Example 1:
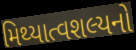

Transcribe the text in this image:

મિથ્યાત્વશલ્યનો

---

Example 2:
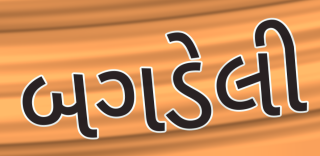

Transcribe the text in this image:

બગડેલી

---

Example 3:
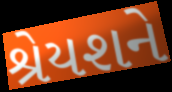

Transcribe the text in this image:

શ્રેયશને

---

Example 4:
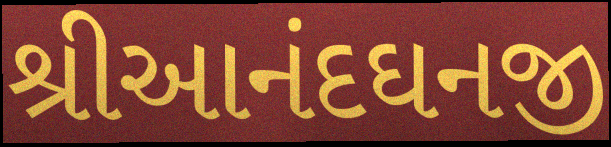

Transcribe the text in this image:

શ્રીઆનંદઘનજી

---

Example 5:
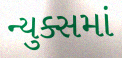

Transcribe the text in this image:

ન્યુક્સમાં